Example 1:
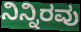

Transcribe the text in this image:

ನಿನ್ನಿರವು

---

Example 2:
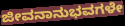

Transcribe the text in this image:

ಜೀವನಾನುಭವಗಳೇ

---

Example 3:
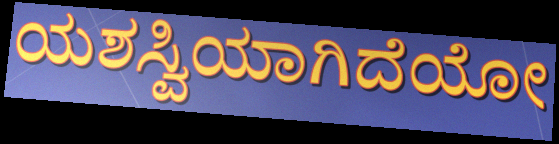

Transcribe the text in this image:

ಯಶಸ್ವಿಯಾಗಿದೆಯೋ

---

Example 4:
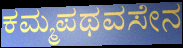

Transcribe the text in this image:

ಕಮ್ಮಪಥವಸೇನ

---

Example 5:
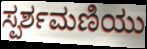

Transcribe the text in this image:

ಸ್ಪರ್ಶಮಣಿಯು